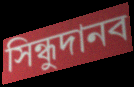
সিন্ধুদানব